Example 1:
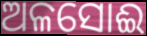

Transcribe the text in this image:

ଅଳସୋଈ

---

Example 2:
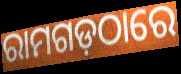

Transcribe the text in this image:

ରାମଗଡ଼ଠାରେ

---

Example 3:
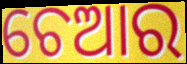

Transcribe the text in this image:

ଚେଆର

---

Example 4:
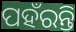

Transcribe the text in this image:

ପହଁରନ୍ତି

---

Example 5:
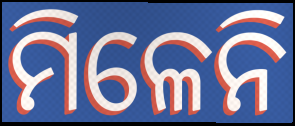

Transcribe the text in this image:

ମିଳେନି